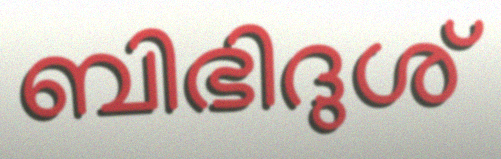
ബിഭിദുശ്